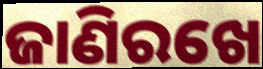
ଜାଣିରଖେ